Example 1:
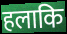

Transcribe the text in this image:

हलाकि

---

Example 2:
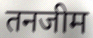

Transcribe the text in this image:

तनजीम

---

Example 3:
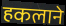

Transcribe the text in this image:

हकलाने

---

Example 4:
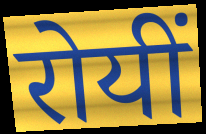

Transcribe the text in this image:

रोयीं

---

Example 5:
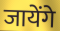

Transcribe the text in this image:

जायेंगे